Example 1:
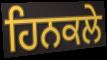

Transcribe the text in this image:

ਹਿਨਕਲੇ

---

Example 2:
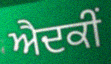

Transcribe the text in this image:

ਐਦਕੀਂ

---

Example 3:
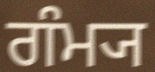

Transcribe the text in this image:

ਗੰਮ੍ਯ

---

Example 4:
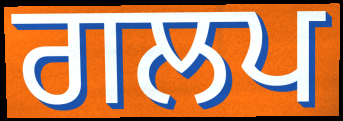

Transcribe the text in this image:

ਗਲਪ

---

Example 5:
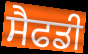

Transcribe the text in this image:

ਸੈਫਡੀ